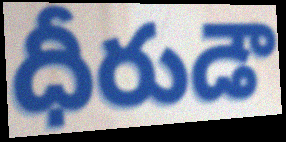
ధీరుడౌ